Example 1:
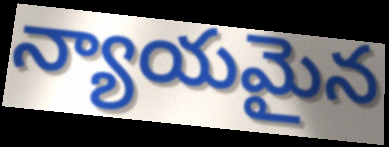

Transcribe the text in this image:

న్యాయమైన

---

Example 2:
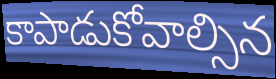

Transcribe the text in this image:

కాపాడుకోవాల్సిన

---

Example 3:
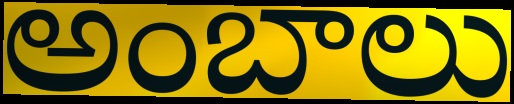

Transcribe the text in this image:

అంబాలు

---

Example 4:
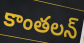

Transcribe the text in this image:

కాంతలన్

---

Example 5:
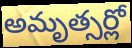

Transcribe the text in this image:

అమృత్సర్లో